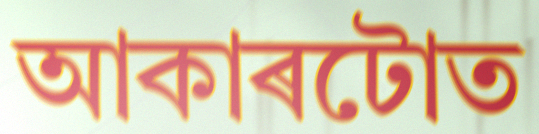
আকাৰটোত